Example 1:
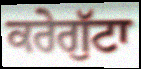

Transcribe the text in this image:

ਕਰੇਗੁੱਟਾ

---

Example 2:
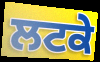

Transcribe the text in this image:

ਲਟਕੇ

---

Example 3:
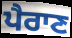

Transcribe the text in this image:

ਪੈਰਾਣ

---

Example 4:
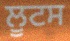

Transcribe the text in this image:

ਲੂਟਸ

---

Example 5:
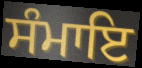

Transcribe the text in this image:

ਸੰਮਾਇ